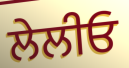
ਲੇਲੀਓ